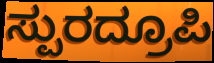
ಸ್ಪುರದ್ರೂಪಿ